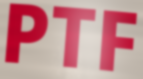
PTF